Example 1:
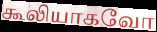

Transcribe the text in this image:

கூலியாகவோ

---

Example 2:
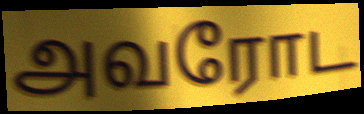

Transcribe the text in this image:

அவரோட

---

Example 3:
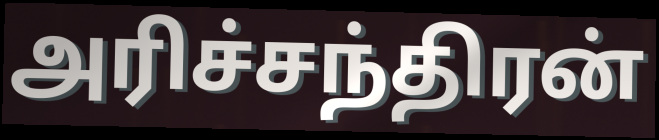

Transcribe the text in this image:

அரிச்சந்திரன்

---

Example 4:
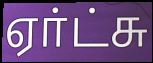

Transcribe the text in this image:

ஏர்ட்சு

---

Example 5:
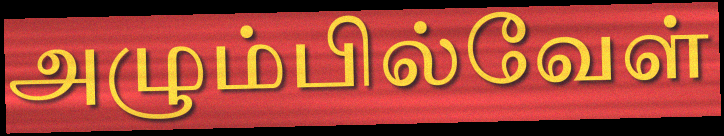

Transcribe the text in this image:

அழும்பில்வேள்